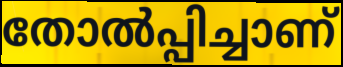
തോൽപ്പിച്ചാണ്